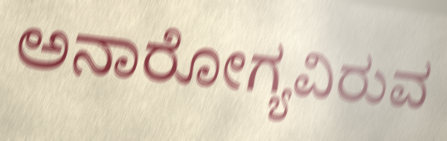
ಅನಾರೋಗ್ಯವಿರುವ